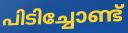
പിടിച്ചോണ്ട്